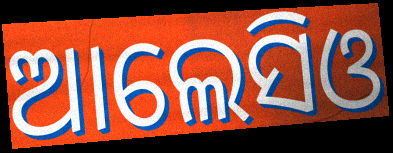
ଆଲେସିଓ